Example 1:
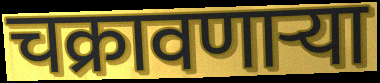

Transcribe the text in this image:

चक्रावणाऱ्या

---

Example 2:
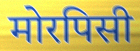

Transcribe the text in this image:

मोरपिसी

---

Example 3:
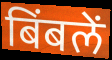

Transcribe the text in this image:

बिंबलें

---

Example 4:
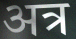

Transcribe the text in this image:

अत्र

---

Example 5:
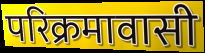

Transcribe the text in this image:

परिक्रमावासी